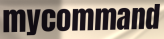
mycommand